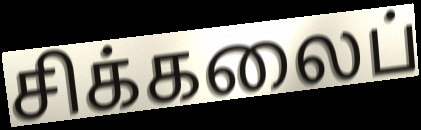
சிக்கலைப்